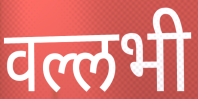
वल्लभी